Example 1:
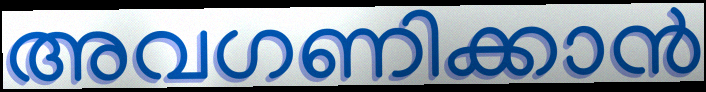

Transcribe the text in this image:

അവഗണിക്കാൻ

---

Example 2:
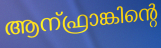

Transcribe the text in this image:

ആന്ഫ്രാങ്കിന്റെ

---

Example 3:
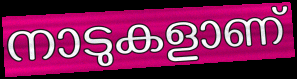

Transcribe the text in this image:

നാടുകളാണ്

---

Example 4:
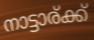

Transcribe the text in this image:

നാട്ടാര്ക്ക്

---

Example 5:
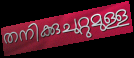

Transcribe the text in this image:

തനിക്കുചുറ്റുമുള്ള